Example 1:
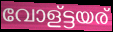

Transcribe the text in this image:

വോള്ട്ടയര്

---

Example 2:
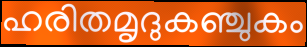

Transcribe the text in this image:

ഹരിതമൃദുകഞ്ചുകം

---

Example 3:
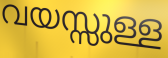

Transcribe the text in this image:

വയസ്സുള്ള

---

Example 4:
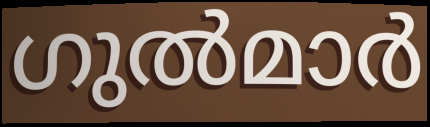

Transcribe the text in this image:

ഗുൽമാർ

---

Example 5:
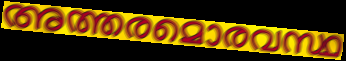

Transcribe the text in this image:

അത്തരമൊരവസ്ഥ